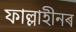
ফাল্লাহীনৰ